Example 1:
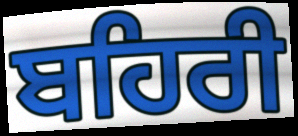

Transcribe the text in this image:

ਬਹਿਰੀ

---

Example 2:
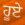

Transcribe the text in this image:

ਹੂਏ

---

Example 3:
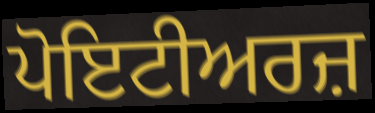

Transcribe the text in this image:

ਪੋਇਟੀਅਰਜ਼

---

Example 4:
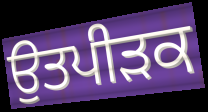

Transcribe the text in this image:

ਉਤਪੀੜਕ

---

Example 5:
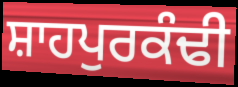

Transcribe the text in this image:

ਸ਼ਾਹਪੁਰਕੰਢੀ